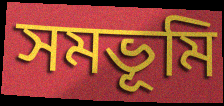
সমভূমি